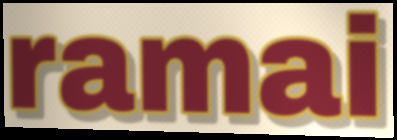
ramai